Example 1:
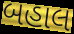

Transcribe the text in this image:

બહાલ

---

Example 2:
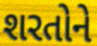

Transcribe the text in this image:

શરતોને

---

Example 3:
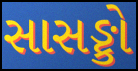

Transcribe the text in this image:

સાસઙ્કો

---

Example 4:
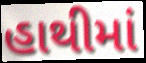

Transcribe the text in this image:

હાથીમાં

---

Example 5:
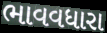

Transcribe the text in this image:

ભાવવધારા